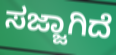
ಸಜ್ಜಾಗಿದೆ